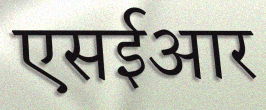
एसईआर